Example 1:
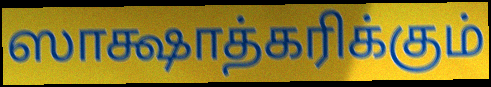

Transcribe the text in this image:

ஸாக்ஷாத்கரிக்கும்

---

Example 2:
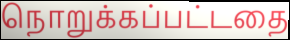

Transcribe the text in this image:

நொறுக்கப்பட்டதை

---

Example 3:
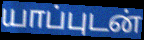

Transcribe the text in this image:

யாப்புடன்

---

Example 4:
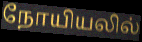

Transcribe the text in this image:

நோயியலில்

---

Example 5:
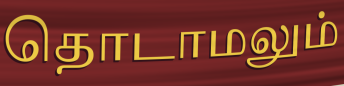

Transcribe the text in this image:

தொடாமலும்